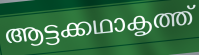
ആട്ടക്കഥാകൃത്ത്